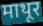
माथूर